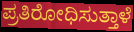
ಪ್ರತಿರೋಧಿಸುತ್ತಾಳೆ